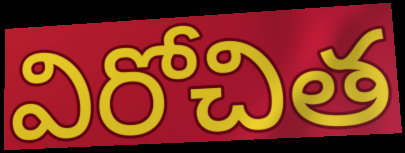
విరోచిత